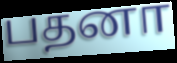
பதனா